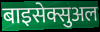
बाइसेक्सुअल